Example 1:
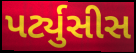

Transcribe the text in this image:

પર્ટ્યુસીસ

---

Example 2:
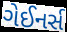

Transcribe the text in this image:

ગેઈનર્સ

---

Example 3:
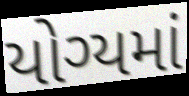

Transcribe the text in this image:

યોગ્યમાં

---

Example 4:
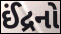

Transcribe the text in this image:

ઈંદ્રનો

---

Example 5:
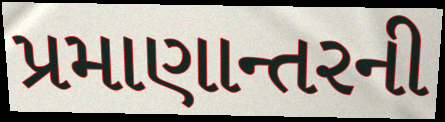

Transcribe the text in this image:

પ્રમાણાન્તરની